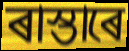
ৰাস্তাৰে